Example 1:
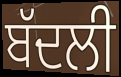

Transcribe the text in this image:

ਬੱਦਲੀ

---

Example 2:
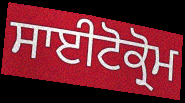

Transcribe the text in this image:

ਸਾਈਟੋਕ੍ਰੋਮ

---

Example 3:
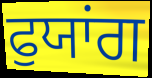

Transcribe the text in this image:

ਫੁਯਾਂਗ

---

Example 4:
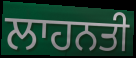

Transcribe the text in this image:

ਲਾਹਨਤੀ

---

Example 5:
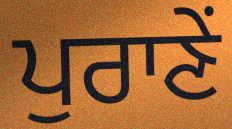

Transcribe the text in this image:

ਪੁਰਾਣੇਂ